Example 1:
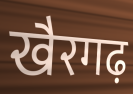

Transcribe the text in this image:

खैरगढ़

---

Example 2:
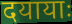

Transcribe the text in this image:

दयायाः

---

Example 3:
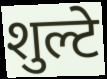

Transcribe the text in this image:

शुल्टे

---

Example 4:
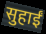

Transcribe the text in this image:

सुहाईं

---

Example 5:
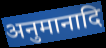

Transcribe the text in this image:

अनुमानादि